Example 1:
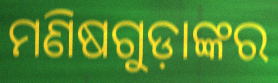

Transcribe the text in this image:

ମଣିଷଗୁଡ଼ାଙ୍କର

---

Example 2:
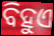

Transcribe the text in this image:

ବିହୁଏ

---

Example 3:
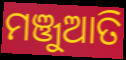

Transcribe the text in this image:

ମଞ୍ଜୁଆତି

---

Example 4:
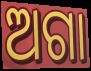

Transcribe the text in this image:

ଅଗା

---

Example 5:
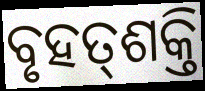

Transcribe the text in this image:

ବୃହତ୍‌ଶକ୍ତି